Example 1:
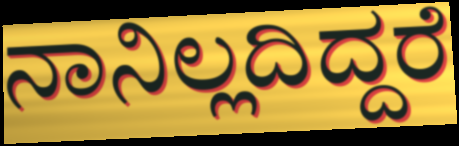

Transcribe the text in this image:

ನಾನಿಲ್ಲದಿದ್ದರೆ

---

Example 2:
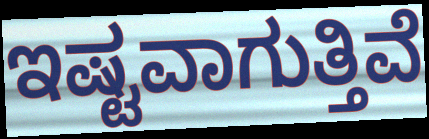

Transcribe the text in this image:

ಇಷ್ಟವಾಗುತ್ತಿವೆ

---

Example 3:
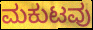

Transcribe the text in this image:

ಮಕುಟವು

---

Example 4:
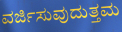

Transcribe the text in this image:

ವರ್ಜಿಸುವುದುತ್ತಮ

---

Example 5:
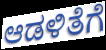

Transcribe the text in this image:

ಆಡಳಿತೆಗೆ